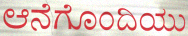
ಆನೆಗೊಂದಿಯು